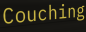
Couching